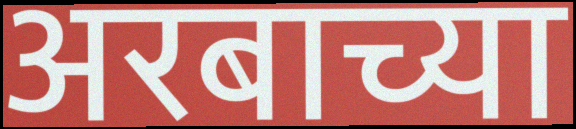
अरबाच्या